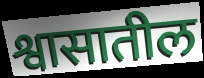
श्वासातील